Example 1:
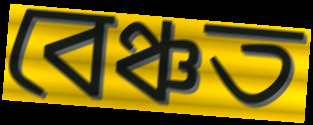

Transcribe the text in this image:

বেঞ্চত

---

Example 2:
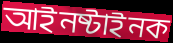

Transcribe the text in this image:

আইনষ্টাইনক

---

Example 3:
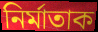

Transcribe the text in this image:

নিৰ্মাতাক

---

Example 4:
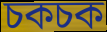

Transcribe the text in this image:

চকচক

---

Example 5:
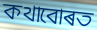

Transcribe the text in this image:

কথাবোৰত